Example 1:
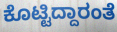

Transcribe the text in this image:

ಕೊಟ್ಟಿದ್ದಾರಂತೆ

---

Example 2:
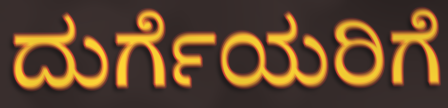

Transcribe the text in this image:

ದುರ್ಗೆಯರಿಗೆ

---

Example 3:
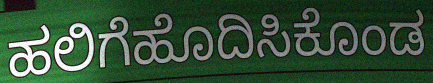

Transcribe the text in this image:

ಹಲಿಗೆಹೊದಿಸಿಕೊಂಡ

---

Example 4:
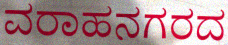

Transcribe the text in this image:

ವರಾಹನಗರದ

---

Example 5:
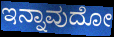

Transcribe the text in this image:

ಇನ್ನಾವುದೋ